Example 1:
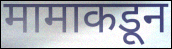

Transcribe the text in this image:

मामाकडून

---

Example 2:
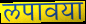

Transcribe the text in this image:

लपावया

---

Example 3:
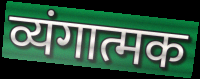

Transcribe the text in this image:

व्यंगात्मक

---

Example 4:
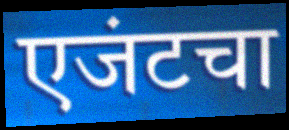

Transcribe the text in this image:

एजंटचा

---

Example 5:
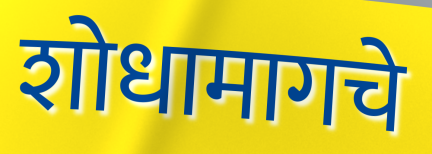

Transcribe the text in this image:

शोधामागचे